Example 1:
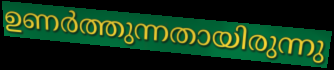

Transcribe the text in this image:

ഉണർത്തുന്നതായിരുന്നു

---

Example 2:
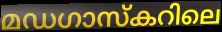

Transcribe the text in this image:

മഡഗാസ്കറിലെ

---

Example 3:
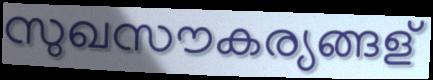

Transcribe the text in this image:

സുഖസൗകര്യങ്ങള്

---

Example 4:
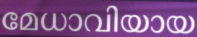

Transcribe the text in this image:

മേധാവിയായ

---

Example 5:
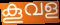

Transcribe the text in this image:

കൂവള